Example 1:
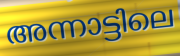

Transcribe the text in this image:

അന്നാട്ടിലെ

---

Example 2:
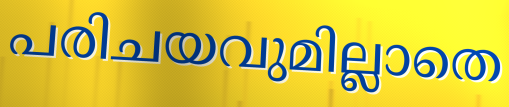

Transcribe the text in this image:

പരിചയവുമില്ലാതെ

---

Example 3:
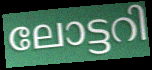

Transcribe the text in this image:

ലോട്ടറി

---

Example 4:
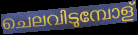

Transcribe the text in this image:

ചെലവിടുമ്പോള്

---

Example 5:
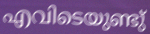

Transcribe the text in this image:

എവിടെയുണ്ടു്